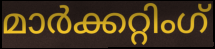
മാർക്കറ്റിംഗ്